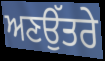
ਅਣਉੱਤਰੇ